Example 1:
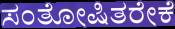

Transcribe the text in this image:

ಸಂತೋಷಿತರೇಕೆ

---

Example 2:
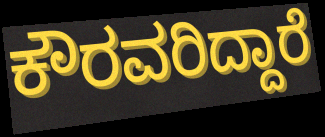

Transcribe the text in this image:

ಕೌರವರಿದ್ದಾರೆ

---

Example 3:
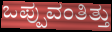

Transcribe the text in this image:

ಒಪ್ಪುವಂತಿತ್ತು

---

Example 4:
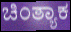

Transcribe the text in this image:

ಚಿಂತ್ಯಾಕ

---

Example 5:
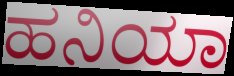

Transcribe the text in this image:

ಹನಿಯಾ